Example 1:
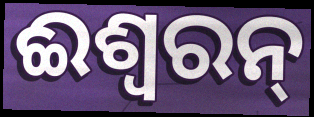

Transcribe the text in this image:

ଈଶ୍ୱରନ୍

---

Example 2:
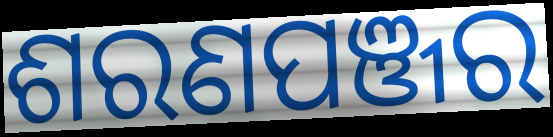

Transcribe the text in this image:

ଶରଣପଞ୍ଜର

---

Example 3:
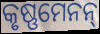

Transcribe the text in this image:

କୃଷ୍ଣମେନନ୍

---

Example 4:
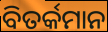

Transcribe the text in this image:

ବିତର୍କମାନ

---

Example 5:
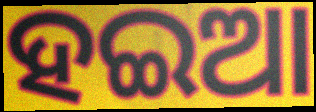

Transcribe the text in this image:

ହଇଆ